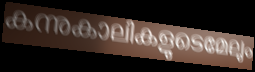
കന്നുകാലികളുടെമേലും